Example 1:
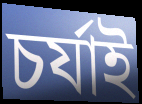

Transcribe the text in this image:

চর্যাই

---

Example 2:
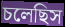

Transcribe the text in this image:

চলেছিস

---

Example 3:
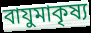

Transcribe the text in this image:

বাযুমাকৃষ্য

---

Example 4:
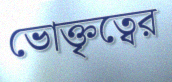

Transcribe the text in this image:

ভোক্তৃত্বের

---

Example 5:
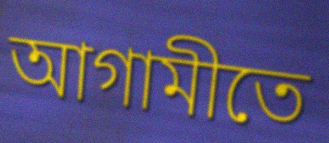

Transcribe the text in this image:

আগামীতে